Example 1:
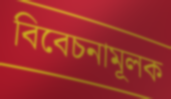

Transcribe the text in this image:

বিবেচনামূলক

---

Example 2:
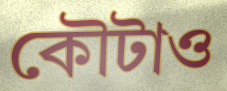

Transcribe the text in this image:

কৌটাও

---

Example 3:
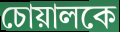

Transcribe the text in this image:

চোয়ালকে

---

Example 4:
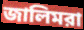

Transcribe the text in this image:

জালিমরা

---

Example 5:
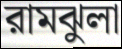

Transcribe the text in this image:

রামঝুলা